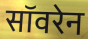
सॉवरेन